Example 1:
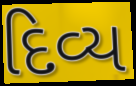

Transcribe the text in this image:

દિવ્ય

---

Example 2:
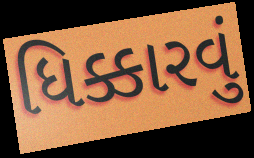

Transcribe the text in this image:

ધિક્કારવું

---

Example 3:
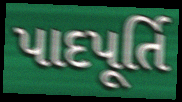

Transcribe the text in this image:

પાદપૂર્તિ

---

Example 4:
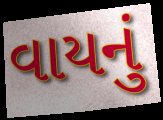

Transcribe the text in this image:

વાયનું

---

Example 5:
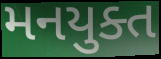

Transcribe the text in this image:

મનયુક્ત